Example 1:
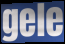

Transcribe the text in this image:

gele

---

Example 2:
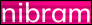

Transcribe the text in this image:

nibram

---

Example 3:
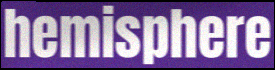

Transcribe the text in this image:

hemisphere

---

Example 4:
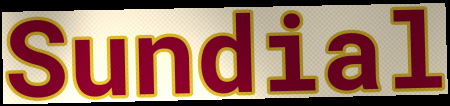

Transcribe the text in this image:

Sundial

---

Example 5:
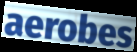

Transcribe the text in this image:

aerobes